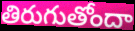
తిరుగుతోందా